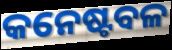
କନେଷ୍ଟବଳ